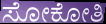
ಸೋಕೋತಿ